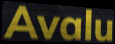
Avalu